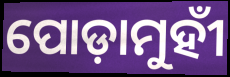
ପୋଡ଼ାମୁହୀଁ